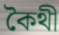
কৈথী